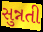
સુન્નતી